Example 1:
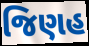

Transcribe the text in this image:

જિણહ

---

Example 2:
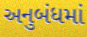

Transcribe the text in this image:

અનુબંધમાં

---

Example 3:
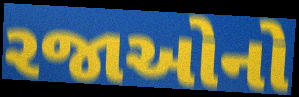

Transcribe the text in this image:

રજાઓનો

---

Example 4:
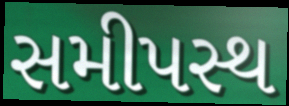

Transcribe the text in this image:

સમીપસ્થ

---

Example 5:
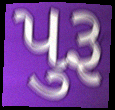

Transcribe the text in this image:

પુરૂ